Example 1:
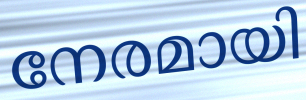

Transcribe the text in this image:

നേരമായി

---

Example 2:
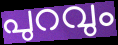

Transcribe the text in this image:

പുറവും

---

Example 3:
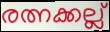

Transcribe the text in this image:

രത്നക്കല്ല്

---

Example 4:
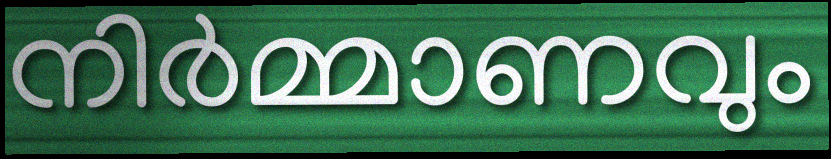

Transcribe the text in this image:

നിർമ്മാണവും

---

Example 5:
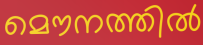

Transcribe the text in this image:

മൌനത്തിൽ